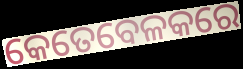
କେତେବେଳକରେ